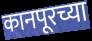
कानपूरच्या